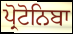
ਪ੍ਰੋਟੋਨਿਬਾ